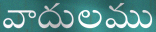
వాదులము